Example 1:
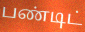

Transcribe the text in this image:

பண்டிட்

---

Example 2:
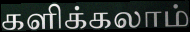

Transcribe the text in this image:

களிக்கலாம்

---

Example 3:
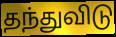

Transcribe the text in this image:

தந்துவிடு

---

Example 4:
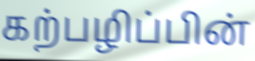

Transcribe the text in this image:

கற்பழிப்பின்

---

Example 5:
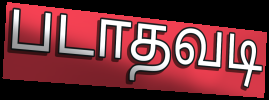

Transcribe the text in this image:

படாதவடி